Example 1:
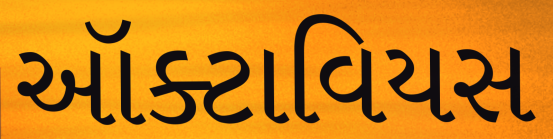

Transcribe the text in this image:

ઑક્ટાવિયસ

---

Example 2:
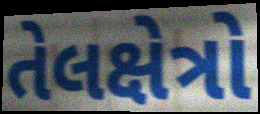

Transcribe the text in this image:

તેલક્ષેત્રો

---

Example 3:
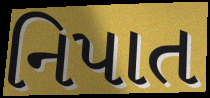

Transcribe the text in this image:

નિપાત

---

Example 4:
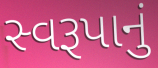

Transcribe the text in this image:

સ્વરૂપાનું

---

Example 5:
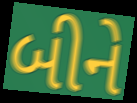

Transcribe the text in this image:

બીને